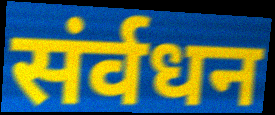
संर्वधन